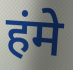
हंमे